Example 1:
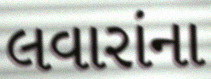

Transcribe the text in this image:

લવારાંના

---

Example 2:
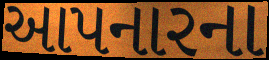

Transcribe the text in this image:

આપનારના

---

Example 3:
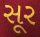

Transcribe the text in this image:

સૂર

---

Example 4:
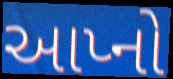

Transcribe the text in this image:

આપ્નો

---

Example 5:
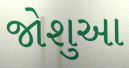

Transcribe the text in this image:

જોશુઆ